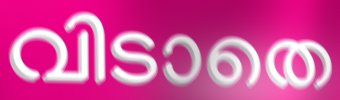
വിടാതെ